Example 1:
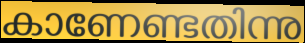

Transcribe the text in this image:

കാണേണ്ടതിന്നു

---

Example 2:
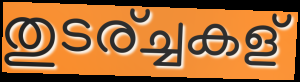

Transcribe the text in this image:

തുടര്ച്ചകള്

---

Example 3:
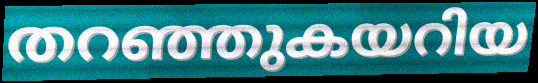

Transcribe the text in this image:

തറഞ്ഞുകയറിയ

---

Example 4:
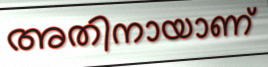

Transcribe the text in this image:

അതിനായാണ്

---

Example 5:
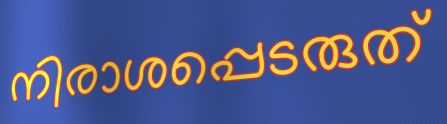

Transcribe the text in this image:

നിരാശപ്പെടരുത്